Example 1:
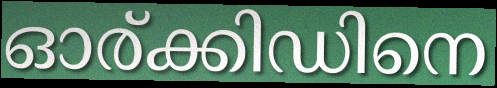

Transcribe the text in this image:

ഓര്ക്കിഡിനെ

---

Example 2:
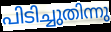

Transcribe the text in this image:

പിടിച്ചുതിന്നു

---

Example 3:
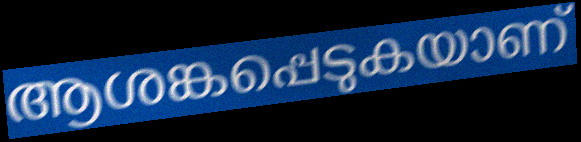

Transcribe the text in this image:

ആശങ്കപ്പെടുകയാണ്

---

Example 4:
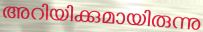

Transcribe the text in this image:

അറിയിക്കുമായിരുന്നു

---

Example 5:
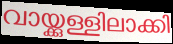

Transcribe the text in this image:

വായ്ക്കുള്ളിലാക്കി